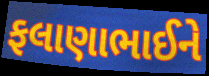
ફલાણાભાઈને